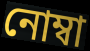
নোম্বা